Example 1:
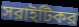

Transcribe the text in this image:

সরাইটিকর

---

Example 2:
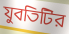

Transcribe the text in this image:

যুবতিটির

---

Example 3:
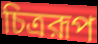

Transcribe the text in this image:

চিত্ররূপ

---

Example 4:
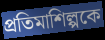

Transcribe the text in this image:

প্রতিমাশিল্পকে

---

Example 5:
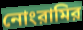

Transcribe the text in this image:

নোংরামির